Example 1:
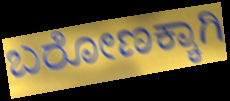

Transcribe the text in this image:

ಬರೋಣಕ್ಕಾಗಿ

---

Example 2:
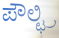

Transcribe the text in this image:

ಪೌಲ್ಟ್ರಿ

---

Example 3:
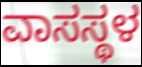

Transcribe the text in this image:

ವಾಸಸ್ಥಳ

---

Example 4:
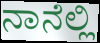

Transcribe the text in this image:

ನಾನೆಲ್ಲಿ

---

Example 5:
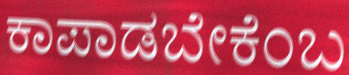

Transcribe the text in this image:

ಕಾಪಾಡಬೇಕೆಂಬ